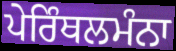
ਪੇਰਿੰਥਲਮੰਨਾ